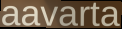
aavarta